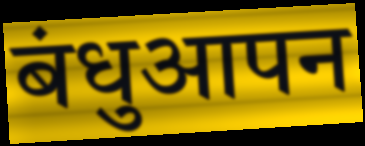
बंधुआपन